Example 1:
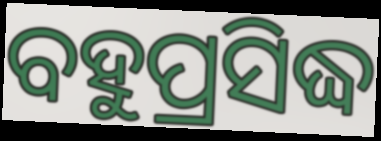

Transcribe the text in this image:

ବହୁପ୍ରସିଦ୍ଧ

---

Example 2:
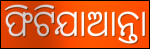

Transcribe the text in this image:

ଫିଟିଯାଆନ୍ତା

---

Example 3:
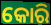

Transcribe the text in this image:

କୋରି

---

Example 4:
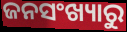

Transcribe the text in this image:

ଜନସଂଖ୍ୟାରୁ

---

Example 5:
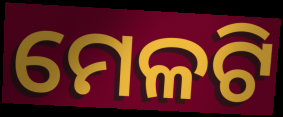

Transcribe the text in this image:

ମେଳଟି